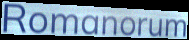
Romanorum